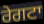
ਰੇਗਟਾ